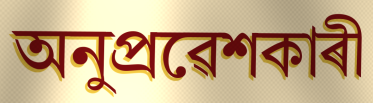
অনুপ্ৰৱেশকাৰী